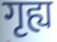
गृह्य